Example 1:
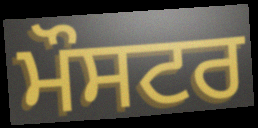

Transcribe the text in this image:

ਮੌਸਟਰ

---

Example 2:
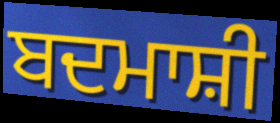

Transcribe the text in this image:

ਬਦਮਾਸ਼ੀ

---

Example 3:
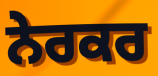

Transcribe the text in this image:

ਨੇਰਕਰ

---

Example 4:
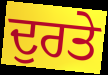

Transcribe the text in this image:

ਦੁਰਤੇ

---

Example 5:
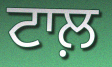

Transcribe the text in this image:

ਟਾਲ਼